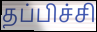
தப்பிச்சி